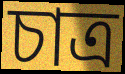
চাত্র